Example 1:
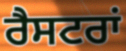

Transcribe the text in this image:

ਰੈਸਟਰਾਂ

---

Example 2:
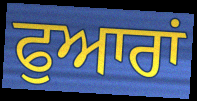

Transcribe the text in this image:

ਫੁਆਰਾਂ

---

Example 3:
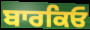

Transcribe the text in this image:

ਬਾਰਕਿਓ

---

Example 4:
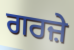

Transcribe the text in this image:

ਗਰਜ਼ੇ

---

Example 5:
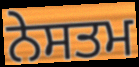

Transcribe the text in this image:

ਨੇਸਤਮ